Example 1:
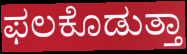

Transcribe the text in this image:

ಫಲಕೊಡುತ್ತಾ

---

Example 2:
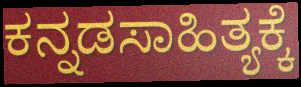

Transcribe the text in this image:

ಕನ್ನಡಸಾಹಿತ್ಯಕ್ಕೆ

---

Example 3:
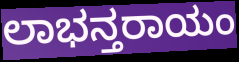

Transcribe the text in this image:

ಲಾಭನ್ತರಾಯಂ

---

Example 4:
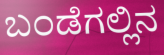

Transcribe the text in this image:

ಬಂಡೆಗಲ್ಲಿನ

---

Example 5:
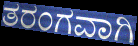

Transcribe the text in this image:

ತರಂಗವಾಗಿ